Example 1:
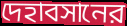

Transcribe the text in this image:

দেহাবসানের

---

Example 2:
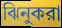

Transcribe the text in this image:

ঝিনুকরা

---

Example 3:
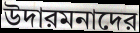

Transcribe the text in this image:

উদারমনাদের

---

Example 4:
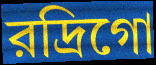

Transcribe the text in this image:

রদ্রিগো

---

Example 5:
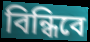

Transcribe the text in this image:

বিন্ধিবে